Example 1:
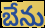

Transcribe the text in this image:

బేను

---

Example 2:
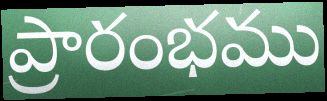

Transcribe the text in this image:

ప్రారంభము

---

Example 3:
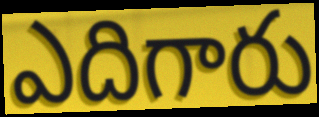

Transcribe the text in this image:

ఎదిగారు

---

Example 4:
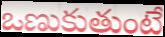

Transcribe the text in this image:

ఒణుకుతుంటే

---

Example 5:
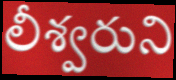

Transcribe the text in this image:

లీశ్వరుని